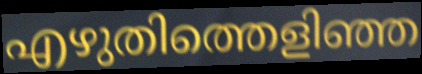
എഴുതിത്തെളിഞ്ഞ